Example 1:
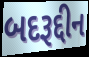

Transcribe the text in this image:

બદરૂદ્દીન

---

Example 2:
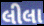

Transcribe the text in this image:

લીલા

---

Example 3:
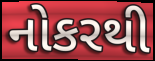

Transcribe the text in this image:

નોકરથી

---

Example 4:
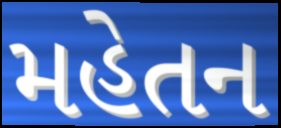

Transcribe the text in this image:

મહેતન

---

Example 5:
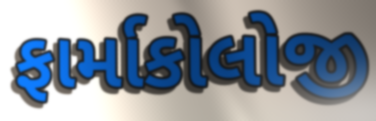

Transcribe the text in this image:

ફાર્માકોલોજી